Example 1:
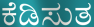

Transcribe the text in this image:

ಕೆಡಿಸುತ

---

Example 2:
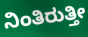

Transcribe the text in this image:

ನಿಂತಿರುತ್ತೀ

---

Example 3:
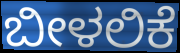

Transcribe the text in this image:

ಬೀಳಲಿಕೆ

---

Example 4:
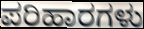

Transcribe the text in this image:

ಪರಿಹಾರಗಳು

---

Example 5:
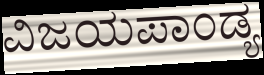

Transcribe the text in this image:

ವಿಜಯಪಾಂಡ್ಯ